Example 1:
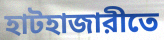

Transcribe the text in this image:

হাটহাজারীতে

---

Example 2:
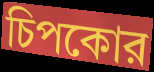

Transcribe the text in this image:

চিপকোর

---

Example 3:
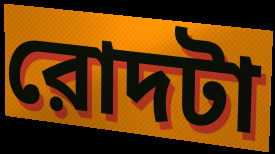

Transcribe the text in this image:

রোদটা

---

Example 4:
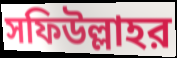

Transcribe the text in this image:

সফিউল্লাহর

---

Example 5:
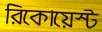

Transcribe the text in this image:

রিকোয়েস্ট